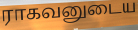
ராகவனுடைய